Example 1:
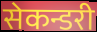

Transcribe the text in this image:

सेकन्डरी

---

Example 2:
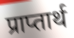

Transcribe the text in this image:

प्राप्तार्थ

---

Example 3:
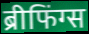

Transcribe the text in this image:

ब्रीफिंग्स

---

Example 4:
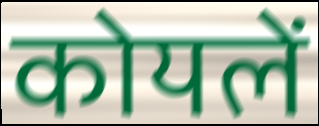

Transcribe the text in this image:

कोयलें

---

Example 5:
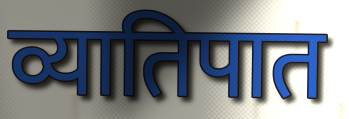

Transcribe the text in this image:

व्यातिपात